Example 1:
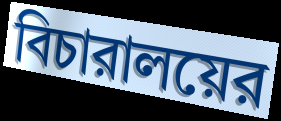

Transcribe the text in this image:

বিচারালয়ের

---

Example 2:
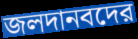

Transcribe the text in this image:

জলদানবদের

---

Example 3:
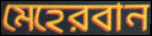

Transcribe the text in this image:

মেহেরবান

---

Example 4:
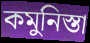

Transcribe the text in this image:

কমুনিস্তা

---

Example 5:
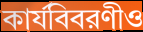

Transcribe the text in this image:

কার্যবিবরণীও